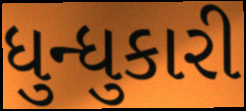
ધુન્ધુકારી